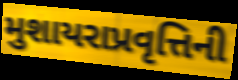
મુશાયરાપ્રવૃત્તિની